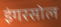
इंगरसोल